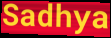
Sadhya